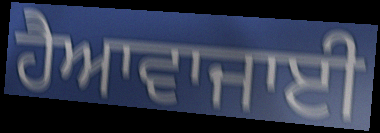
ਹੈਆਵਾਜਾਈ